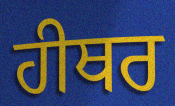
ਹੀਥਰ